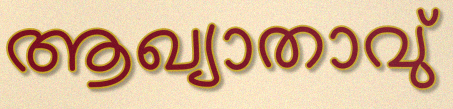
ആഖ്യാതാവു്